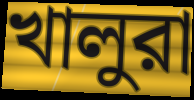
খালুরা